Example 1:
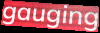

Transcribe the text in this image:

gauging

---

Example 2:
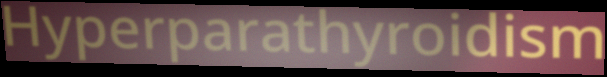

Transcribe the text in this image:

Hyperparathyroidism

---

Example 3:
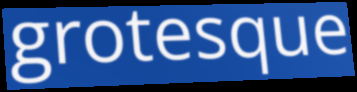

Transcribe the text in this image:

grotesque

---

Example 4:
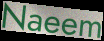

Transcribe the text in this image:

Naeem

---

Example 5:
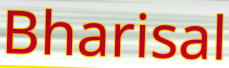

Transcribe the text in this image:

Bharisal